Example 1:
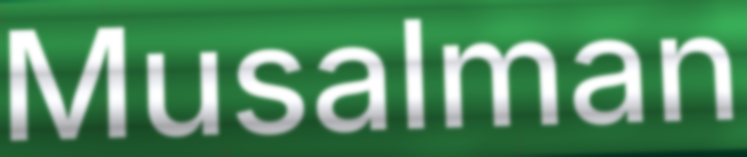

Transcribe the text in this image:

Musalman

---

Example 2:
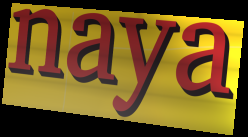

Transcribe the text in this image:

naya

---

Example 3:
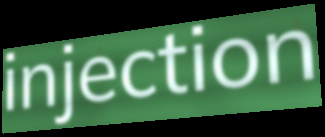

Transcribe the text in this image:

injection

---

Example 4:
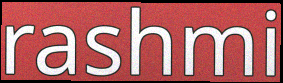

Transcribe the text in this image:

rashmi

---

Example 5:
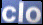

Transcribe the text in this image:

clo